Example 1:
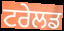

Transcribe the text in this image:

ਟਰੇਲਡ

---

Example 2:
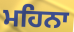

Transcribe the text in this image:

ਮਹਿਨਾ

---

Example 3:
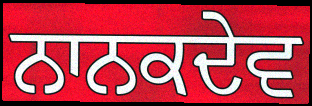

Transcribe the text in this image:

ਨਾਨਕਦੇਵ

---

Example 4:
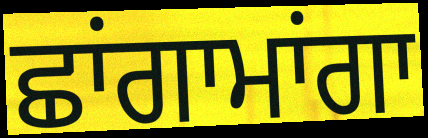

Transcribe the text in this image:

ਛਾਂਗਾਮਾਂਗਾ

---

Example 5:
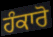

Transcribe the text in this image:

ਹੰਕਾਰੋ